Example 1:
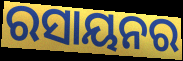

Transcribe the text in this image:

ରସାୟନର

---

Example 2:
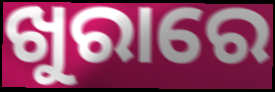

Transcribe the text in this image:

ଖୁରାରେ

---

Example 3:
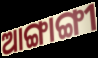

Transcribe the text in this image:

ଆଙ୍ଗାଙ୍ଗୀ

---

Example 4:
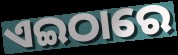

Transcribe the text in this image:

ଏଇଠାରେ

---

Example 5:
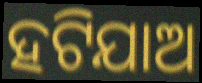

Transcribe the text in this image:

ହଟିଯାଅ